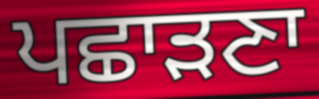
ਪਛਾੜਣਾ